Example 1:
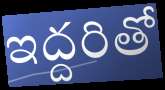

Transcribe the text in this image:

ఇద్దరితో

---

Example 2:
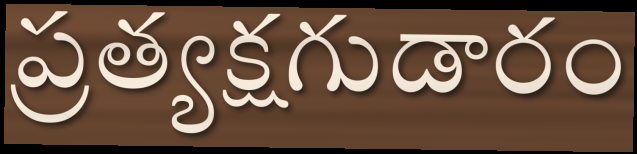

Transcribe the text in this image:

ప్రత్యక్షగుడారం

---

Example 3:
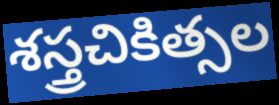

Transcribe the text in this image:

శస్త్రచికిత్సల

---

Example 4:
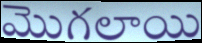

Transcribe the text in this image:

మొగలాయి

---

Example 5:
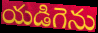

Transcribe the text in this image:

యడిగెను